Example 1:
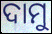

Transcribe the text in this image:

ଦାମୁ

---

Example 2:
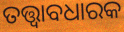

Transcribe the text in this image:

ତତ୍ତ୍ୱାବଧାରକ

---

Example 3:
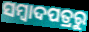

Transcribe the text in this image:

ସମ୍ବାଦପତ୍ରରୁ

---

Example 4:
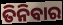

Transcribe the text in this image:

ତିନିବାର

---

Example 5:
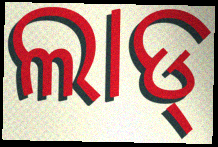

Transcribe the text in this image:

ଲାଡ୍